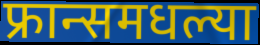
फ्रान्समधल्या